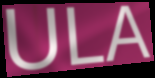
ULA